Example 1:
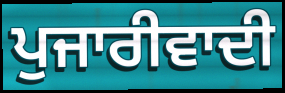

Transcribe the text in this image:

ਪੁਜਾਰੀਵਾਦੀ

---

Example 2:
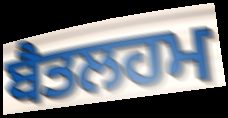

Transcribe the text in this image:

ਬੈਤਲਹਮ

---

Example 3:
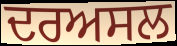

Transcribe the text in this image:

ਦਰਅਸਲ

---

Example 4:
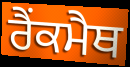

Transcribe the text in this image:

ਰੈਂਕਮੈਥ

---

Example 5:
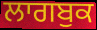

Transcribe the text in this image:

ਲਾਗਬੁਕ